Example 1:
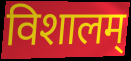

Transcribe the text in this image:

विशालम्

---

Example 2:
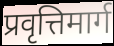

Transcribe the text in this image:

प्रवृत्तिमार्ग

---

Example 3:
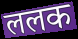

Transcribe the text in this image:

ललक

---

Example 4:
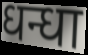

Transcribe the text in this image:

धन्धा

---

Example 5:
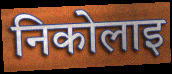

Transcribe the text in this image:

निकोलाइ